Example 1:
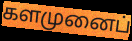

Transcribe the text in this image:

களமுனைப்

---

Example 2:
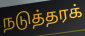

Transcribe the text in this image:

நடுத்தரக்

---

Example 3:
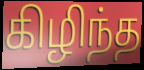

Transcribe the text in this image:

கிழிந்த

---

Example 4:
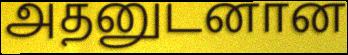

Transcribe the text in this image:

அதனுடனான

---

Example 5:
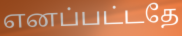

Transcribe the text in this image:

எனப்பட்டதே